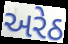
અરેઠ